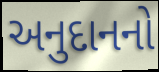
અનુદાનનો